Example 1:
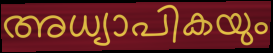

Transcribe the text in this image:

അധ്യാപികയും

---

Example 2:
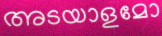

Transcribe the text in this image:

അടയാളമോ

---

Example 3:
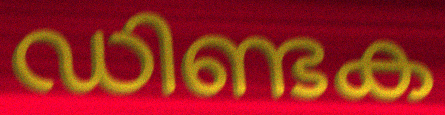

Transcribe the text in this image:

ഡിണ്ടക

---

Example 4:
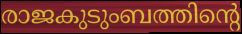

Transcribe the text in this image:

രാജകുടുംബത്തിന്റെ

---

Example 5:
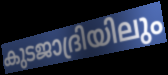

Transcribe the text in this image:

കുടജാദ്രിയിലും